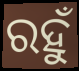
ରହୁଁ